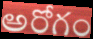
అరోగం